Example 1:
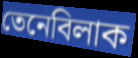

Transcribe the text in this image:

তেনেবিলাক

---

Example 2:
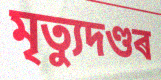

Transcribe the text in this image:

মৃত্যুদণ্ডৰ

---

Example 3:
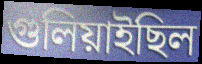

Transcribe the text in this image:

গুলিয়াইছিল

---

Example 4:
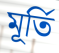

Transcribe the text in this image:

মূৰ্তি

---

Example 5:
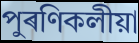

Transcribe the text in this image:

পুৰণিকলীয়া